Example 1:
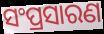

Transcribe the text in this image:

ସଂପ୍ରସାରଣ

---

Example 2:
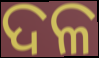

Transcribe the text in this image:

ଦଳ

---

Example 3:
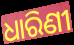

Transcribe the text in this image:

ଧାରିଣୀ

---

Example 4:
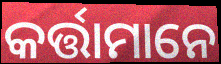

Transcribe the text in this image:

କର୍ତ୍ତାମାନେ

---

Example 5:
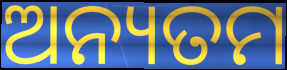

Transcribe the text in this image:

ଅନ୍ୟତମ